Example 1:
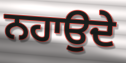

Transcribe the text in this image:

ਨਹਾਉਦੇ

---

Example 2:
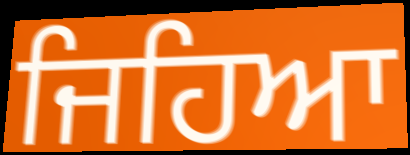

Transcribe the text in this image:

ਜਿਹਿਆ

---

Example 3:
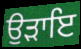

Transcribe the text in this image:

ਉੜਾਇ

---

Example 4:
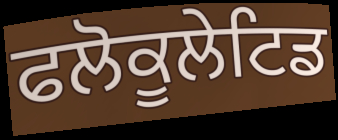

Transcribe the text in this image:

ਫਲੋਕੂਲੇਟਿਡ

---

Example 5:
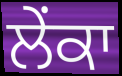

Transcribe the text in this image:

ਲੇਂਕਾ